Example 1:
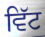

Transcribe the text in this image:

ਵਿੱਟ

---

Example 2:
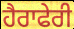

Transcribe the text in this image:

ਹੈਰਾਫੇਰੀ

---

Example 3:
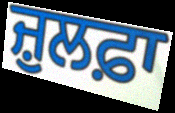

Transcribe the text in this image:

ਜ਼ੁਲਫ਼ਾ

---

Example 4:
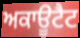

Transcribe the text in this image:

ਅਕਾਊਟੈਟ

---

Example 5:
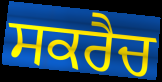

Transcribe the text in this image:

ਸਕਰੈਚ